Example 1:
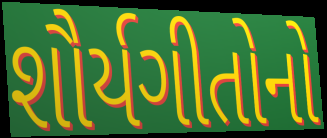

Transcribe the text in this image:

શૌર્યગીતોનો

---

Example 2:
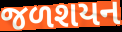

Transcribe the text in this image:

જળશયન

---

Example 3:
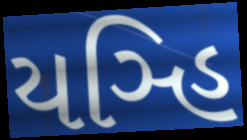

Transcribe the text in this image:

યઞ્હિ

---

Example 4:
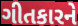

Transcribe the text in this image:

ગીતકારને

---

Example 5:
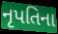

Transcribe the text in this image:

નૃપતિના